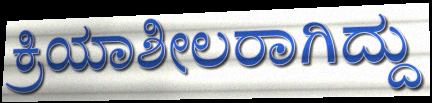
ಕ್ರಿಯಾಶೀಲರಾಗಿದ್ದು